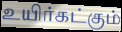
உயிர்கட்கும்